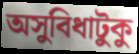
অসুবিধাটুকু